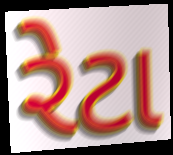
રેટા